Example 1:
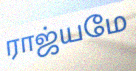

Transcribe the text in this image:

ராஜ்யமே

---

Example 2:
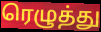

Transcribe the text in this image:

ரெழுத்து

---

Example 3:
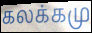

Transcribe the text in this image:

கலக்கமு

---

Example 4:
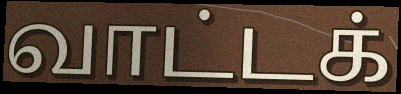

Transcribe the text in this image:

வாட்டக்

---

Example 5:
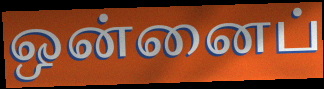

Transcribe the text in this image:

ஒன்னைப்